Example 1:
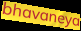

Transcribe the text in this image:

bhavaneya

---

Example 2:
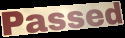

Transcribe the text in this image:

Passed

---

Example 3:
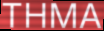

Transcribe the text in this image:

THMA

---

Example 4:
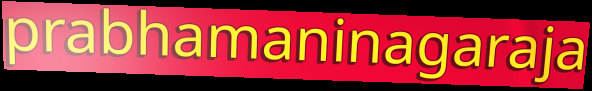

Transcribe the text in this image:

prabhamaninagaraja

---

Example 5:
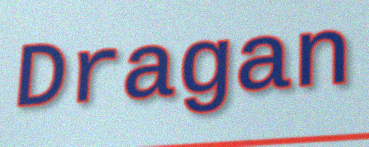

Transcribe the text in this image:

Dragan